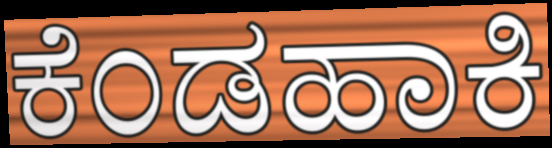
ಕೆಂಡಹಾಕಿ